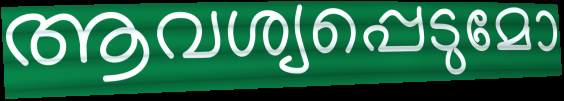
ആവശ്യപ്പെടുമോ